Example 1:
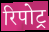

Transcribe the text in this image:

रिपोट्र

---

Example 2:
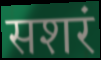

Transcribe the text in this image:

सशरं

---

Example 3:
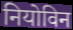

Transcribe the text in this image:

नियोविन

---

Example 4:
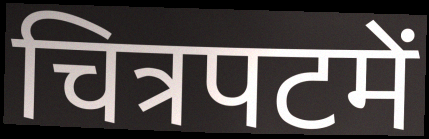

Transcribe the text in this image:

चित्रपटमें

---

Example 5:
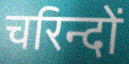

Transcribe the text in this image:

चरिन्दों